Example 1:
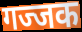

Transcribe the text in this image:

गज्जक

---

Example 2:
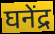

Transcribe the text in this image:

घनेंद्र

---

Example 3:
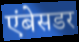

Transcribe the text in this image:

एंबेसडर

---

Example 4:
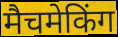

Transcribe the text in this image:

मैचमेकिंग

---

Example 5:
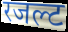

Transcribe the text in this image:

रजल्ट